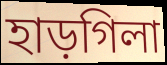
হাড়গিলা